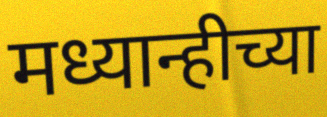
मध्यान्हीच्या